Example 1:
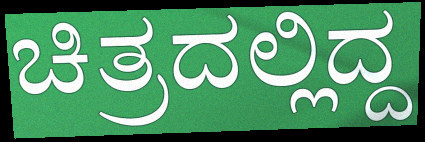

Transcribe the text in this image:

ಚಿತ್ರದಲ್ಲಿದ್ದ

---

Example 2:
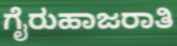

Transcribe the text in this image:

ಗೈರುಹಾಜರಾತಿ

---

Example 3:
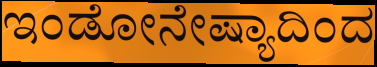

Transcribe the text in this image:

ಇಂಡೋನೇಷ್ಯಾದಿಂದ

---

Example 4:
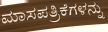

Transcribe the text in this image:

ಮಾಸಪತ್ರಿಕೆಗಳನ್ನು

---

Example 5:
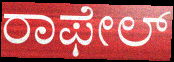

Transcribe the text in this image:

ರಾಫೇಲ್